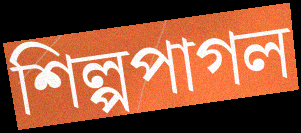
শিল্পপাগল